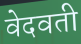
वेदवती